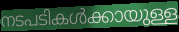
നടപടികൾക്കായുള്ള